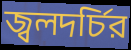
জ্বলদর্চির